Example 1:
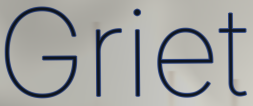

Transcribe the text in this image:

Griet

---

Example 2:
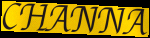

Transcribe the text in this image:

CHANNA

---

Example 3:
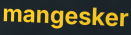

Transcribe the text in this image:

mangesker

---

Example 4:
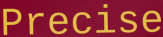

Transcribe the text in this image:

Precise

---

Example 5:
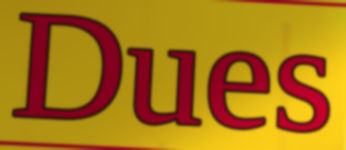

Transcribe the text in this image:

Dues